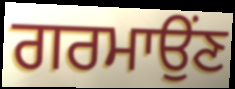
ਗਰਮਾਉਂਣ